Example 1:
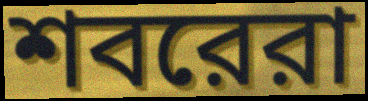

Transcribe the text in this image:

শবরেরা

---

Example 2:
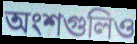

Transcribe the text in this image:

অংশগুলিও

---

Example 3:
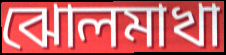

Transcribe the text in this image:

ঝোলমাখা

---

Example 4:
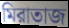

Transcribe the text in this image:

মিরাতাজ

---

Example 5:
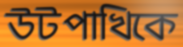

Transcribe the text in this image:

উটপাখিকে